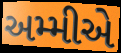
અમ્મીએ